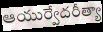
ఆయుర్వేదరీత్యా